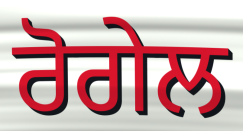
ਰੋਗੇਲ